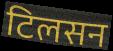
टिलसन